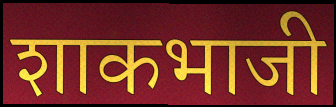
शाकभाजी